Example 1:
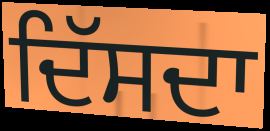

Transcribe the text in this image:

ਦਿੱਸਦਾ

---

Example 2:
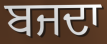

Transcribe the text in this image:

ਬਜਦਾ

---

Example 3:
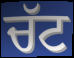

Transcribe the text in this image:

ਚੱਟ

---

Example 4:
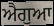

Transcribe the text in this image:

ਐਗੁਆ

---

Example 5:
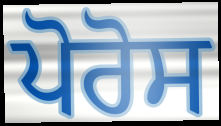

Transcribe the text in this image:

ਪੋਰੋਸ